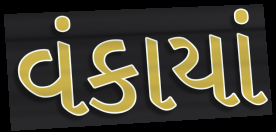
વંકાયાં